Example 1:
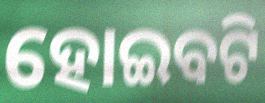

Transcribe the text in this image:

ହୋଇବଟି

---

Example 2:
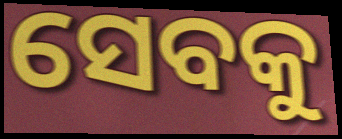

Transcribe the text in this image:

ସେବକୁ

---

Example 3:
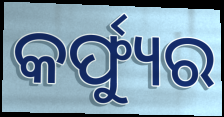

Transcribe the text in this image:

କର୍ଫ୍ୟୁର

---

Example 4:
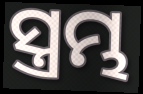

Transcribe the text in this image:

ସ୍ତ୍ରମ୍ଭ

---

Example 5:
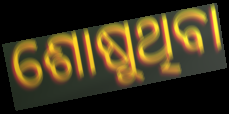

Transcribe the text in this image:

ଶୋଷୁଥିବା